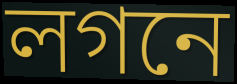
লগনে